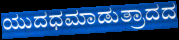
ಯುದಧಮಾಡುತ್ರಾದದ